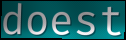
doest